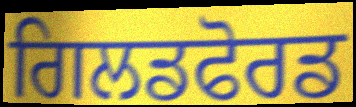
ਗਿਲਡਫੋਰਡ